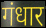
गंधार